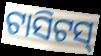
ଟାସିଟସ୍